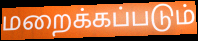
மறைக்கப்படும்